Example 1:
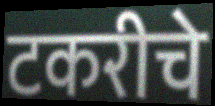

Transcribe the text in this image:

टकरीचे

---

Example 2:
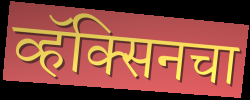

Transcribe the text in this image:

व्हॅक्सिनचा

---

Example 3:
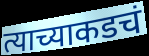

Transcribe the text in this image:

त्याच्याकडचं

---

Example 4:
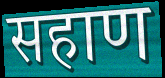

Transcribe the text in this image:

सहाण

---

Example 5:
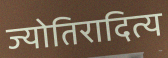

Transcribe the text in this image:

ज्योतिरादित्य